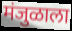
मंजुळाला